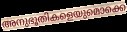
അനുഭൂതികളെയുമൊക്കെ